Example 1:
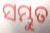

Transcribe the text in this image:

ସମ୍ଭୁତ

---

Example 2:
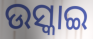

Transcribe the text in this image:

ଉସ୍କାଇ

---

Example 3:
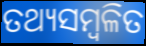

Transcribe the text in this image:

ତଥ୍ୟସମ୍ୱଳିତ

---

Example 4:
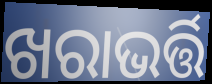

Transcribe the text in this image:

ଖରାଭର୍ତ୍ତି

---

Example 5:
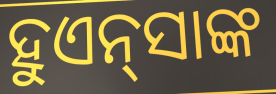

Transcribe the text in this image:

ହୁଏନ୍‍ସାଙ୍କ